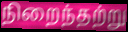
நிறைந்தற்று